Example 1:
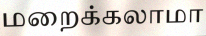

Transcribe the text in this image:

மறைக்கலாமா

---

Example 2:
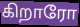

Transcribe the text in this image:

கிறாரோ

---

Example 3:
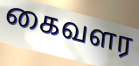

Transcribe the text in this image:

கைவளர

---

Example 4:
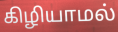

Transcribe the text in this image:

கிழியாமல்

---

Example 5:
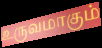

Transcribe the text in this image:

உருவமாகும்